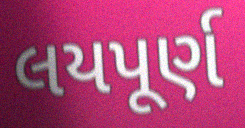
લયપૂર્ણ